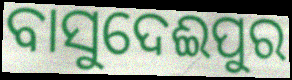
ବାସୁଦେଈପୁର